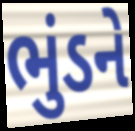
ભુંડને